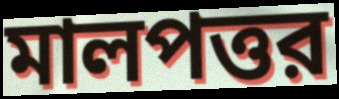
মালপত্তর